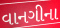
વાનગીના